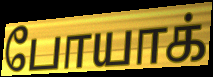
போயாக்